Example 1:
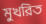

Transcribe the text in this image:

মুখরিত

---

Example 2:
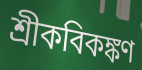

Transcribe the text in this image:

শ্রীকবিকঙ্কণ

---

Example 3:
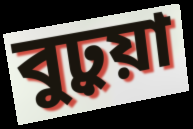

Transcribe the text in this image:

বুঢ়ুয়া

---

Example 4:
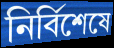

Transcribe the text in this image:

নির্বিশেষে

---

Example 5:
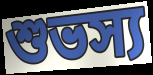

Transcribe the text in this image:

শুভস্য